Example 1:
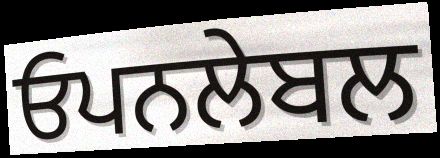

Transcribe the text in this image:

ਓਪਨਲੇਬਲ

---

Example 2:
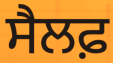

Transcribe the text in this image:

ਸੈਲਫ਼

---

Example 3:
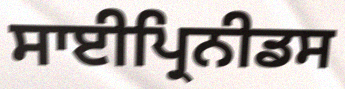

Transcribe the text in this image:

ਸਾਈਪ੍ਰਿਨੀਡਸ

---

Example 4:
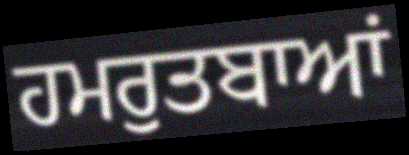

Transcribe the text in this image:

ਹਮਰੁਤਬਾਆਂ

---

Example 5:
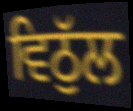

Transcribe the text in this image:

ਵਿਠੁੱਲ